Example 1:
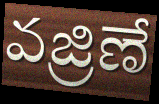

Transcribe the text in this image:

వజ్రిణే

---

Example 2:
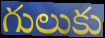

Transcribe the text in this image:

గులుకు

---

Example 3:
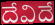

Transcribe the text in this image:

దేవిదే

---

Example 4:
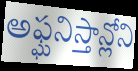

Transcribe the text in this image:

అఫ్ఘనిస్తాన్లోని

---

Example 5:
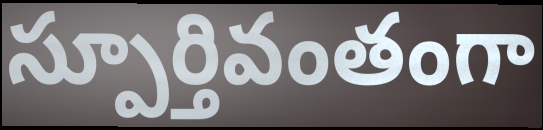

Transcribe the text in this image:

స్పూర్తివంతంగా